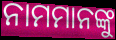
ନାମମାନଙ୍କୁ